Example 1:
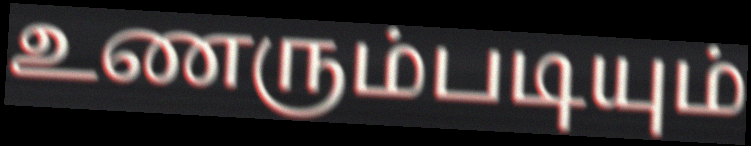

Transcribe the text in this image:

உணரும்படியும்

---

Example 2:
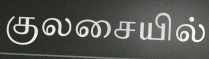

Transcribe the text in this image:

குலசையில்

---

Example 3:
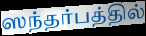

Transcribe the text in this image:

ஸந்தர்பத்தில்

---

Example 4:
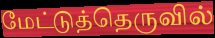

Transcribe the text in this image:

மேட்டுத்தெருவில்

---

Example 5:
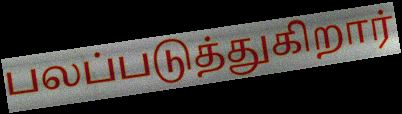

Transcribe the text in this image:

பலப்படுத்துகிறார்